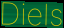
Diels